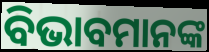
ବିଭାବମାନଙ୍କ